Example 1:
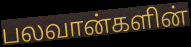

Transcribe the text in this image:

பலவான்களின்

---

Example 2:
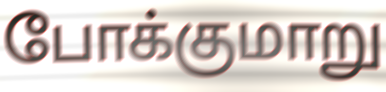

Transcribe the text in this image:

போக்குமாறு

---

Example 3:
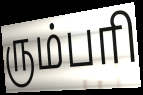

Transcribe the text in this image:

ரும்பரி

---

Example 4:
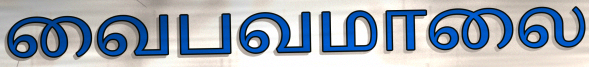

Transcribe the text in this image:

வைபவமாலை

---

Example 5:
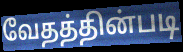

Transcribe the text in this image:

வேதத்தின்படி